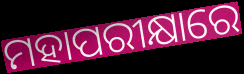
ମହାପରୀକ୍ଷାରେ